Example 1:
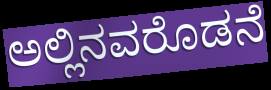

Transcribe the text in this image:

ಅಲ್ಲಿನವರೊಡನೆ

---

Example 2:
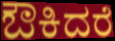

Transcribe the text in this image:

ಔಕಿದರೆ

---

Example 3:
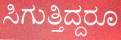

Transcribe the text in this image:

ಸಿಗುತ್ತಿದ್ದರೂ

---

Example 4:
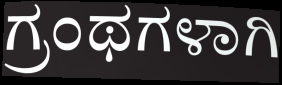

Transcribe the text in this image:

ಗ್ರಂಥಗಳಾಗಿ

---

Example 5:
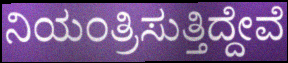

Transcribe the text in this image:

ನಿಯಂತ್ರಿಸುತ್ತಿದ್ದೇವೆ